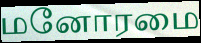
மனோரமை